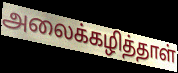
அலைக்கழித்தாள்